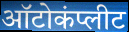
ऑटोकंप्लीट